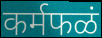
कर्मफळं